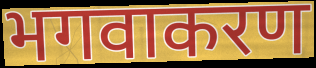
भगवाकरण